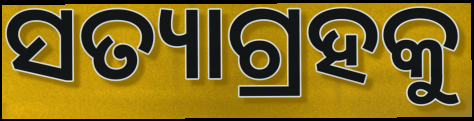
ସତ୍ୟାଗ୍ରହକୁ